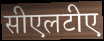
सीएलटीए